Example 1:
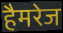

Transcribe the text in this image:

हैमरेज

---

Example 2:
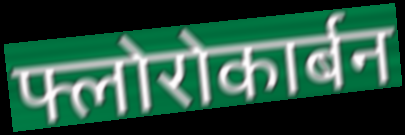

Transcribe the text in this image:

फ्लोरोकार्बन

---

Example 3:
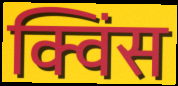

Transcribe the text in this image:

क्विंस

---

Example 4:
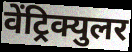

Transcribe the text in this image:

वेंट्रिक्युलर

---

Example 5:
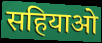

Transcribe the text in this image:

सहियाओ